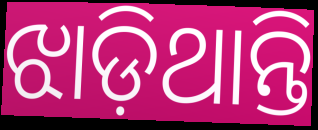
ଝାଡ଼ିଥାନ୍ତି